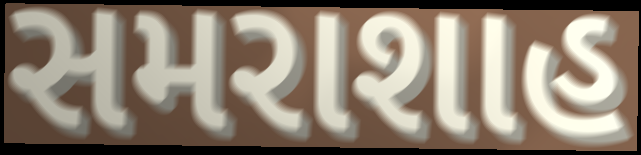
સમરાશાહ